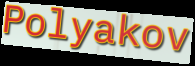
Polyakov